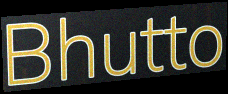
Bhutto